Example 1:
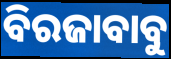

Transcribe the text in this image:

ବିରଜାବାବୁ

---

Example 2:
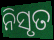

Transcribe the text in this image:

ନିସୃତ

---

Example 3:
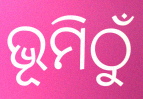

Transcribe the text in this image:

ଭୂମିଠୁଁ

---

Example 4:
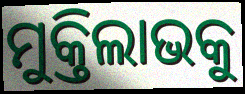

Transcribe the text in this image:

ମୁକ୍ତିଲାଭକୁ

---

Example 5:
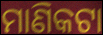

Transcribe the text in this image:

ମାଣିକଟା